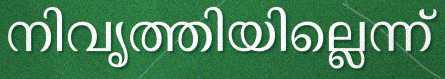
നിവൃത്തിയില്ലെന്ന്